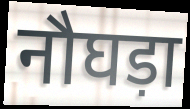
नौघड़ा